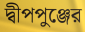
দ্বীপপুঞ্জের